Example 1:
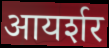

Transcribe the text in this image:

आयर्शर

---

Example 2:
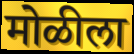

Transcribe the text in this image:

मोळीला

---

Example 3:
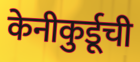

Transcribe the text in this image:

केनीकुर्डूची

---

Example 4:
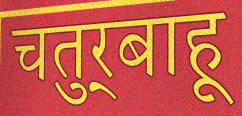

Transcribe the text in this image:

चतुर्बाहू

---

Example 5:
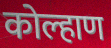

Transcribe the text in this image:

कोल्हाण